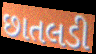
છાતલડી